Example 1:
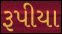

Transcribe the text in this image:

રૂપીયા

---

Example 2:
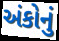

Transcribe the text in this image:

અંકોનું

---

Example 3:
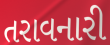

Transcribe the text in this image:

તરાવનારી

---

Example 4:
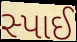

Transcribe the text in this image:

સ્પાઈ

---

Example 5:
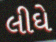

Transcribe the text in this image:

લીઘે